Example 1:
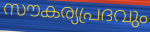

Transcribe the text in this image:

സൗകര്യപ്രദവും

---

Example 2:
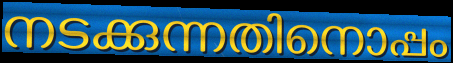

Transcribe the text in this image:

നടക്കുന്നതിനൊപ്പം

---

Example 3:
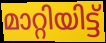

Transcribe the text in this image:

മാറ്റിയിട്ട്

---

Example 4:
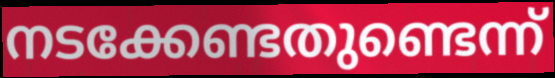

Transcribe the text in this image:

നടക്കേണ്ടതുണ്ടെന്ന്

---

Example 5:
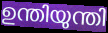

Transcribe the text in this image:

ഉന്തിയുന്തി